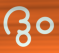
ദും